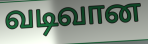
வடிவான